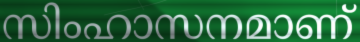
സിംഹാസനമാണ്